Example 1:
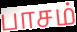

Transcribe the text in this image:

பாசம்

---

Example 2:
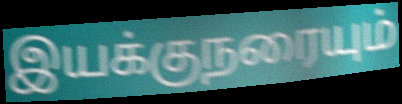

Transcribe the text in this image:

இயக்குநரையும்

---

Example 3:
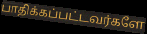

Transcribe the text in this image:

பாதிக்கப்பட்டவர்களே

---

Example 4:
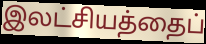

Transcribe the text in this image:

இலட்சியத்தைப்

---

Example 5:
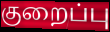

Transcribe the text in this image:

குறைப்பு